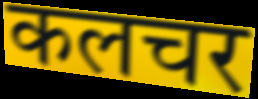
कलचर